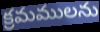
క్రమములను